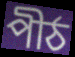
পীঠ